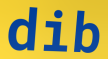
dib